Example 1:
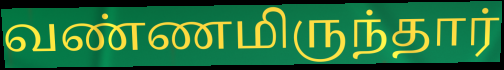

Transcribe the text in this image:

வண்ணமிருந்தார்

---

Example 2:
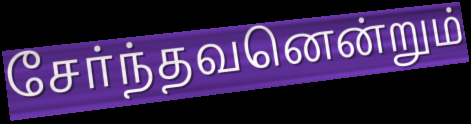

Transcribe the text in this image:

சேர்ந்தவனென்றும்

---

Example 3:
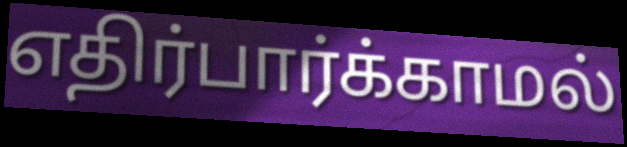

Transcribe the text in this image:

எதிர்பார்க்காமல்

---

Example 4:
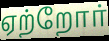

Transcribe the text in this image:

ஏற்றோர்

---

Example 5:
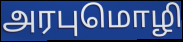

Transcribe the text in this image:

அரபுமொழி